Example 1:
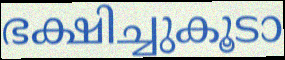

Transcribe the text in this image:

ഭക്ഷിച്ചുകൂടാ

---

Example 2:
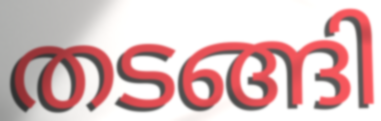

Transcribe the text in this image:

തടങ്ങി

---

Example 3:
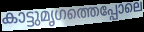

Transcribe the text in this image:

കാട്ടുമൃഗത്തെപ്പോലെ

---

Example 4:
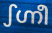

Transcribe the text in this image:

ഽഗ്നീ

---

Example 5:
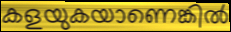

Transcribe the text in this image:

കളയുകയാണെങ്കിൽ